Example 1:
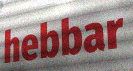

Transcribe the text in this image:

hebbar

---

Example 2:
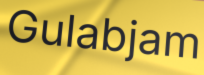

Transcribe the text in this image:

Gulabjam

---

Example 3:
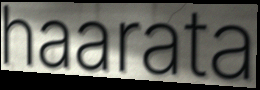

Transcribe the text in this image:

haarata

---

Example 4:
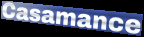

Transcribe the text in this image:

Casamance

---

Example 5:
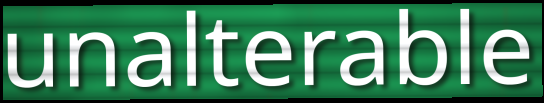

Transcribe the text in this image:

unalterable